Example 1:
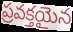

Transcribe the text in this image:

ప్రవక్తయైన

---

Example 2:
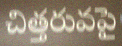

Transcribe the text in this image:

చిత్తరువపై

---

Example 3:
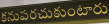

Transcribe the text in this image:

కనుపరచుకుంటారు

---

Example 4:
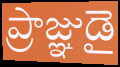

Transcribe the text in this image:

ప్రాజ్ఞుడై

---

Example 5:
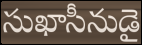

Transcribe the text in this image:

సుఖాసీనుడై